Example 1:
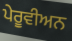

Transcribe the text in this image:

ਪੇਰੂਵੀਅਨ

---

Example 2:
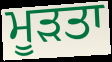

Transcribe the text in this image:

ਮੂੜਤਾ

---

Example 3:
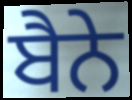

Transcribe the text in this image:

ਬੈਨੇ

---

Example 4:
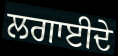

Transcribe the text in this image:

ਲਗਾਈਦੇ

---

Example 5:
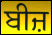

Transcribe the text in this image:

ਬੀਜ਼